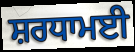
ਸ਼ਰਧਾਮਈ